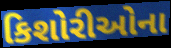
કિશોરીઓના